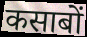
कसाबों